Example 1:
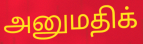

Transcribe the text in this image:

அனுமதிக்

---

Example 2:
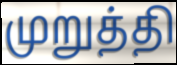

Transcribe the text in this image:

முறுத்தி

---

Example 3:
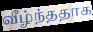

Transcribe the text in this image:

வீழ்ந்ததாக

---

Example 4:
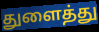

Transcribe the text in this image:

துளைத்து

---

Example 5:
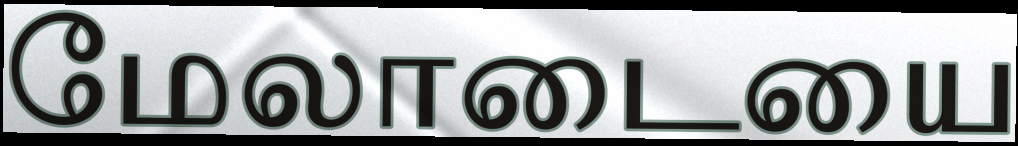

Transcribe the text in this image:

மேலாடையை